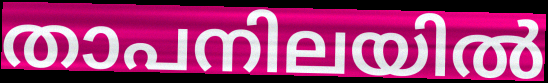
താപനിലയിൽ